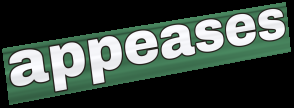
appeases